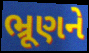
ભ્રૂણને